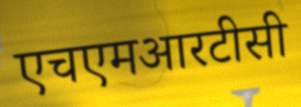
एचएमआरटीसी